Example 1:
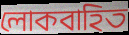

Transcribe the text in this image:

লোকবাহিত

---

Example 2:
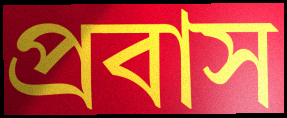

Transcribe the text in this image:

প্রবাস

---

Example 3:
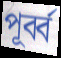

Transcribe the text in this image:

পূর্ব্ব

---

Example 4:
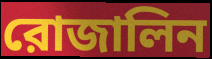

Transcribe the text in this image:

রোজালিন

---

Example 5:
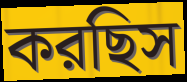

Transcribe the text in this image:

করছিস